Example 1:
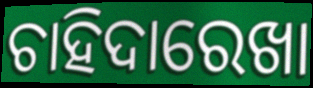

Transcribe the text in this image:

ଚାହିଦାରେଖା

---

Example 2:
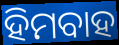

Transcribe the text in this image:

ହିମବାହ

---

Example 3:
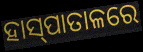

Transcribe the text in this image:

ହାସ୍‌ପାତାଳରେ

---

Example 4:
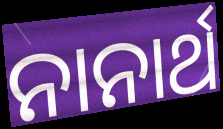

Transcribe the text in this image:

ନାନାର୍ଥ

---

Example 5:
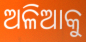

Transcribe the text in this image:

ଅଳିଆକୁ